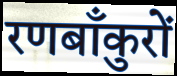
रणबाँकुरों